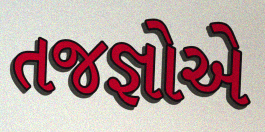
તજજ્ઞોએ